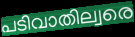
പടിവാതില്വരെ